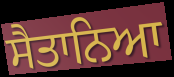
ਸੈਤਾਨਿਆ